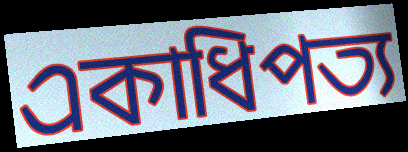
একাধিপত্য